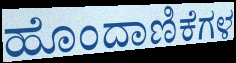
ಹೊಂದಾಣಿಕೆಗಳ